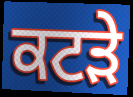
ਕਟੜੇ